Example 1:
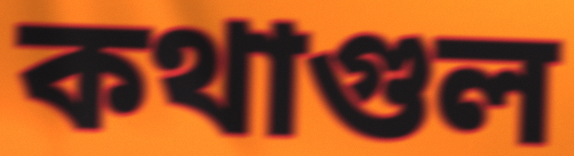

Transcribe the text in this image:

কথাগুল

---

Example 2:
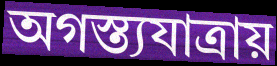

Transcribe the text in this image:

অগস্ত্যযাত্রায়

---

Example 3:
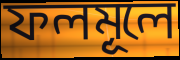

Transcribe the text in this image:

ফলমূলে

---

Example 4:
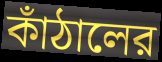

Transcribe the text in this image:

কাঁঠালের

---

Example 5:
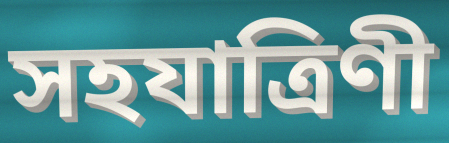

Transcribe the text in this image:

সহযাত্রিণী